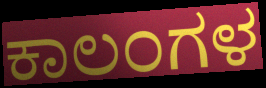
ಕಾಲಂಗಳ